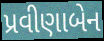
પ્રવીણાબેન